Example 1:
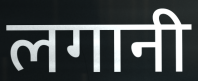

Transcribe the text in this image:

लगानी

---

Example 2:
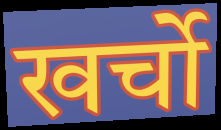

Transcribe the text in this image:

खर्चो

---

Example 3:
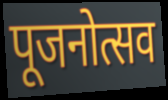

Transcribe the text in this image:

पूजनोत्सव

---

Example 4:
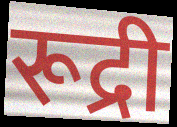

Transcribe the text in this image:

रूद्री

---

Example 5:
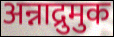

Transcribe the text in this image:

अन्नाद्रुमुक